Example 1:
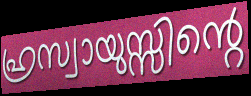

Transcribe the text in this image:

ഹ്രസ്വായുസ്സിന്റെ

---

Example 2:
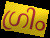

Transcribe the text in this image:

ഗ്രിം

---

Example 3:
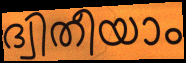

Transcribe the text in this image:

ദ്വിതീയാം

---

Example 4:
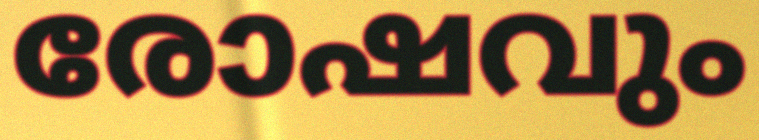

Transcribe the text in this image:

രോഷവും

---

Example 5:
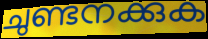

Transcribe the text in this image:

ചുണ്ടനക്കുക